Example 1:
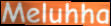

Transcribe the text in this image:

Meluhha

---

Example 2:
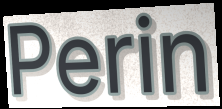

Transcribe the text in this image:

Perin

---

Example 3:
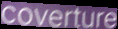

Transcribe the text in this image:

coverture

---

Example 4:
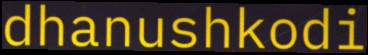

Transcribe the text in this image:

dhanushkodi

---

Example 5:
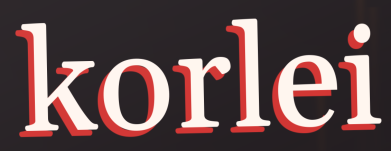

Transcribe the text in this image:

korlei